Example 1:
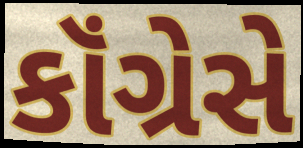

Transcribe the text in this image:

કૉંગ્રેસે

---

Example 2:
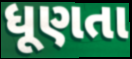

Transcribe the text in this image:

ધૂણતા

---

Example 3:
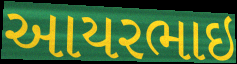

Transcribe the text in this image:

આયરભાઇ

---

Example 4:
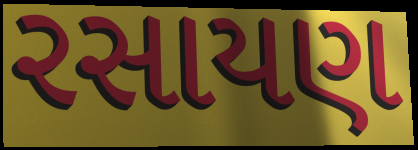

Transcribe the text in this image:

રસાયણ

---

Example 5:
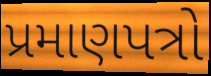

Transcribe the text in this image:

પ્રમાણપત્રો